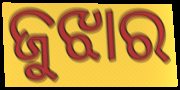
ଜୁଝାର